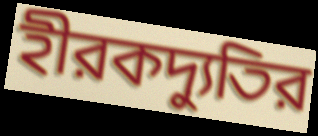
হীরকদ্যুতির